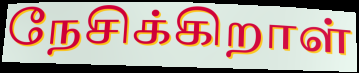
நேசிக்கிறாள்